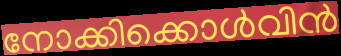
നോക്കിക്കൊൾവിൻ